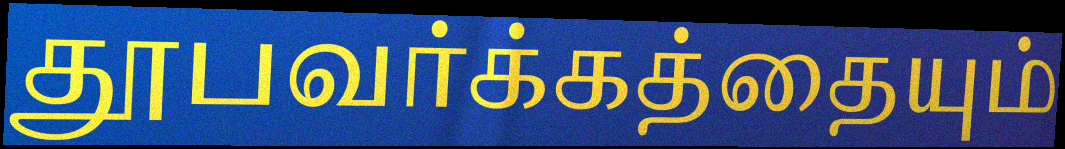
தூபவர்க்கத்தையும்